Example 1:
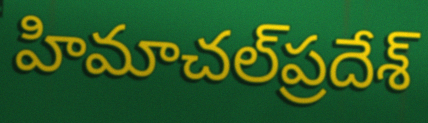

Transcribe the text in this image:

హిమాచల్‌ప్రదేశ్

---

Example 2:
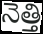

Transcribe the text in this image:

నెత్తి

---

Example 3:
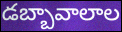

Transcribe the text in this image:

డబ్బావాలాల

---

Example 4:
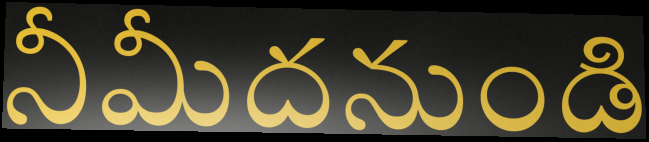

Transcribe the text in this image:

నీమీదనుండి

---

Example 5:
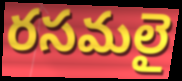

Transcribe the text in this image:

రసమలై